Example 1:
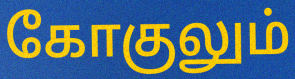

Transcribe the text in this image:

கோகுலும்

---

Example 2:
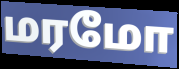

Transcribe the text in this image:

மரமோ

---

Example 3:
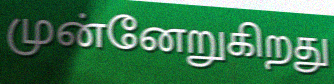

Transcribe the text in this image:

முன்னேறுகிறது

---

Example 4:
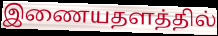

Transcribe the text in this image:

இணையதளத்தில்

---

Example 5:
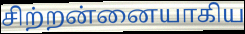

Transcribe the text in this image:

சிற்றன்னையாகிய